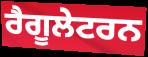
ਰੈਗੂਲੇਟਰਨ